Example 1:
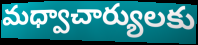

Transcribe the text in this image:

మధ్వాచార్యులకు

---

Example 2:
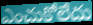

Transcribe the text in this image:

ఎంచుకోలేదు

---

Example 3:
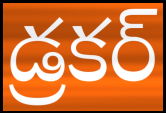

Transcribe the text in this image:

డ్రకర్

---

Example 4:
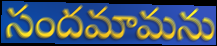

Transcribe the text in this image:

సందమామను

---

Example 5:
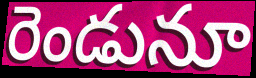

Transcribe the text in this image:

రెండునూ